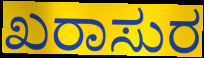
ಖರಾಸುರ